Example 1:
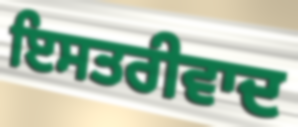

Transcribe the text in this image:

ਇਸਤਰੀਵਾਦ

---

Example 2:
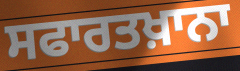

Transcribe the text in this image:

ਸਫਾਰਤਖ਼ਾਨਾ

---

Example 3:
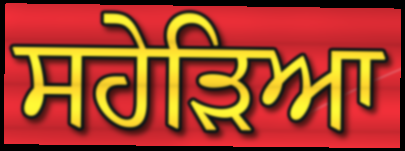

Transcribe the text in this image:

ਸਹੇੜਿਆ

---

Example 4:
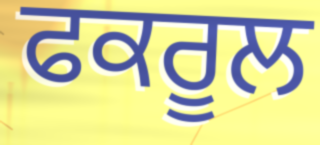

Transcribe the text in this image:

ਫਕਰੂਲ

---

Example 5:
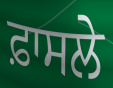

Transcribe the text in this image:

ਫ਼ਾਸਲੇ